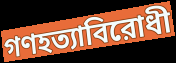
গণহত্যাবিরোধী